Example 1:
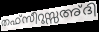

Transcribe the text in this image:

തഫ്സീറുസ്സഅ്ദി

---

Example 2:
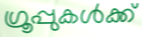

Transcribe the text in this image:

ഗ്രൂപ്പുകൾക്ക്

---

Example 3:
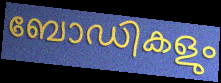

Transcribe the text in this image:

ബോഡികളും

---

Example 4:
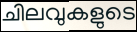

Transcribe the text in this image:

ചിലവുകളുടെ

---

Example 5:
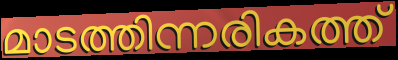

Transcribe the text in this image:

മാടത്തിന്നരികത്ത്